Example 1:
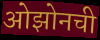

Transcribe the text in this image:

ओझोनची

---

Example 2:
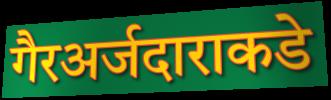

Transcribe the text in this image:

गैरअर्जदाराकडे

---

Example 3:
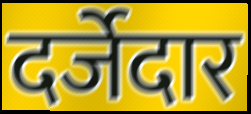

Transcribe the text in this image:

दर्जेदार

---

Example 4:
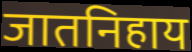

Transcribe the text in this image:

जातनिहाय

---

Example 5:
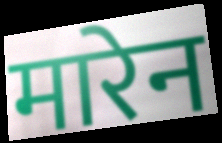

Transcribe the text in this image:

मारेन